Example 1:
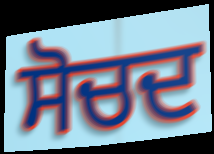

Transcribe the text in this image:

ਸੋਚਦ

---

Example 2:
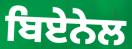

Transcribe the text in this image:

ਬਿਏਨੇਲ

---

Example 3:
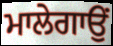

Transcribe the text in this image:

ਮਾਲੇਗਾਉਂ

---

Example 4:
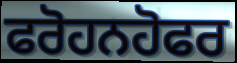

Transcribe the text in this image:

ਫਰੋਹਨਹੋਫਰ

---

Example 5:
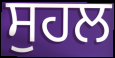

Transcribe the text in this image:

ਸੁਹਲ